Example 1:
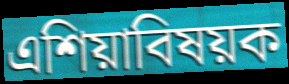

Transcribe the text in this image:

এশিয়াবিষয়ক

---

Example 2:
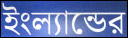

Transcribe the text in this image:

ইংল্যান্ডের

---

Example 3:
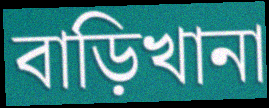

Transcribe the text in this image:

বাড়িখানা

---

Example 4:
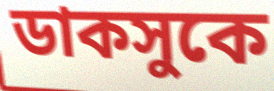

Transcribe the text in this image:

ডাকসুকে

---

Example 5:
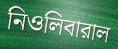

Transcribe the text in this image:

নিওলিবারাল